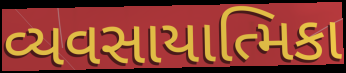
વ્યવસાયાત્મિકા